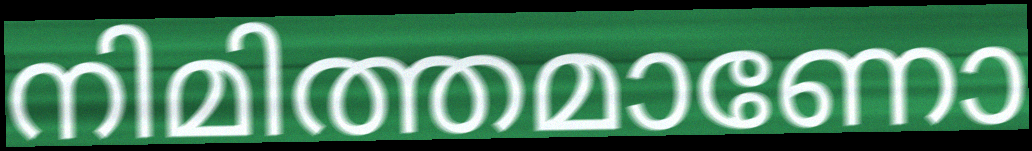
നിമിത്തമാണോ